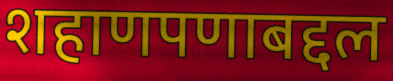
शहाणपणाबद्दल